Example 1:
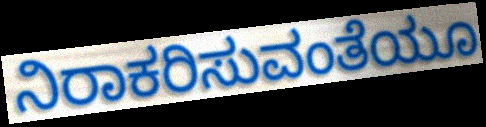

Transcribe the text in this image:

ನಿರಾಕರಿಸುವಂತೆಯೂ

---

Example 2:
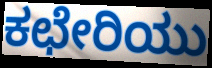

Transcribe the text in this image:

ಕಛೇರಿಯು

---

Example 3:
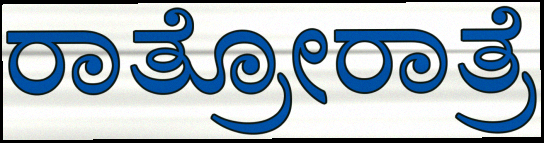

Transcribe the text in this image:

ರಾತ್ರೋರಾತ್ರೆ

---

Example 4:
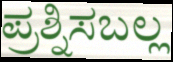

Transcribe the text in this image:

ಪ್ರಶ್ನಿಸಬಲ್ಲ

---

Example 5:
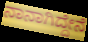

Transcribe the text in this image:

ನಾನಾಗಿದ್ದೇನೆ